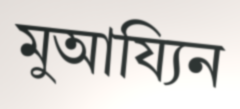
মুআয্যিন